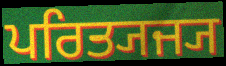
ਪਰਿਤ੍ਯਜ੍ਯ